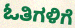
ಓತಿಗಳಿಗೆ